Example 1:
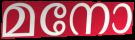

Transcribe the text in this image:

മനോ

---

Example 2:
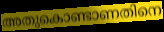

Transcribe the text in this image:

അതുകൊണ്ടാണതിനെ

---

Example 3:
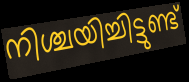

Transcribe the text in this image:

നിശ്ചയിച്ചിട്ടുണ്ട്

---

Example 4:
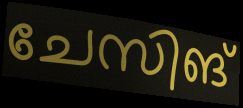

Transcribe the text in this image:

ചേസിങ്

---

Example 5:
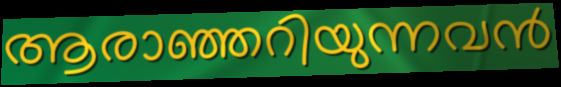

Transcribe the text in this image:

ആരാഞ്ഞറിയുന്നവൻ